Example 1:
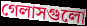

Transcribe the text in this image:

গেলাসগুলো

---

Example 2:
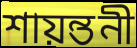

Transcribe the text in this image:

শায়ন্তনী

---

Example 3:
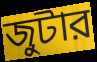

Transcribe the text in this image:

জুটার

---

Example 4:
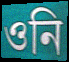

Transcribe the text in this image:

ওনি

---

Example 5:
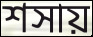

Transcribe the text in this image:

শসায়